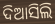
ଦିଆସିଲି